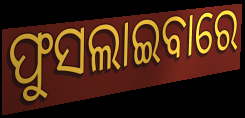
ଫୁସଲାଇବାରେ